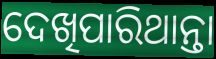
ଦେଖିପାରିଥାନ୍ତା